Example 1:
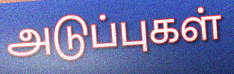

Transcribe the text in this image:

அடுப்புகள்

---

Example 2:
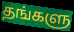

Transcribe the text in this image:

தங்களு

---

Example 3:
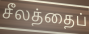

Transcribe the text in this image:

சீலத்தைப்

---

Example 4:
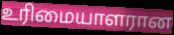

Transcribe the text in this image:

உரிமையாளரான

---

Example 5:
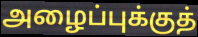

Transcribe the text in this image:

அழைப்புக்குத்